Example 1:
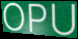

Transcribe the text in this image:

OPU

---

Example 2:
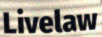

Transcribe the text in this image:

Livelaw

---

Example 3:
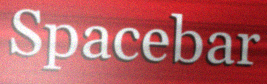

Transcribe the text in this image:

Spacebar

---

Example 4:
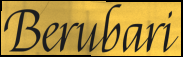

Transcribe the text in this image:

Berubari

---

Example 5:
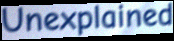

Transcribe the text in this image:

Unexplained